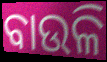
ବାଉଳି